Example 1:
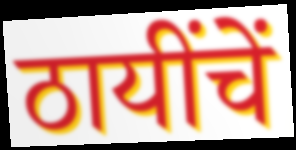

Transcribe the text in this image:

ठायींचें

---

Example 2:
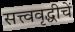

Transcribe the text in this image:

सत्त्ववृद्धीचें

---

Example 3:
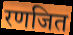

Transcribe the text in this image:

रणजित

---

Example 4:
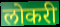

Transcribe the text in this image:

लोकरी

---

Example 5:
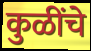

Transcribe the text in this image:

कुळींचे